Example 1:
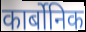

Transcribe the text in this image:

कार्बोनिक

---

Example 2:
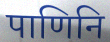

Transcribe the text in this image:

पाणिनि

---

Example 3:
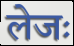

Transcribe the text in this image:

लेजः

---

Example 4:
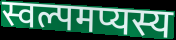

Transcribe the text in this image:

स्वल्पमप्यस्य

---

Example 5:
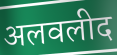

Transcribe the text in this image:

अलवलीद